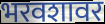
भरवशावर